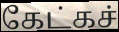
கேட்கச்